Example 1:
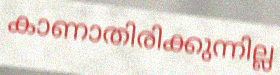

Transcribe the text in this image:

കാണാതിരിക്കുന്നില്ല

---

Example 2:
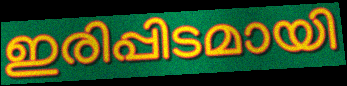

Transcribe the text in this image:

ഇരിപ്പിടമായി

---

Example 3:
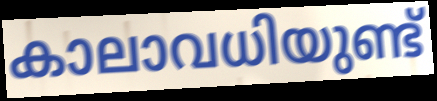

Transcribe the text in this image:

കാലാവധിയുണ്ട്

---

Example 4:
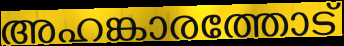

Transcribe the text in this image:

അഹങ്കാരത്തോട്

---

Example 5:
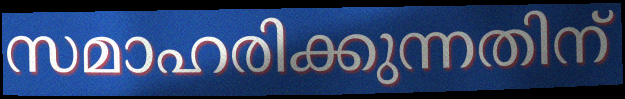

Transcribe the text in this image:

സമാഹരിക്കുന്നതിന്